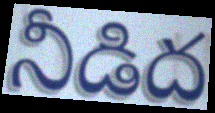
నీడిద